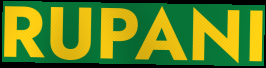
RUPANI